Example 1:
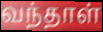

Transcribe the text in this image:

வந்தாள்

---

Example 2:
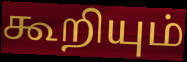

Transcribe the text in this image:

கூறியும்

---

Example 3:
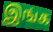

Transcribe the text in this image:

இங்க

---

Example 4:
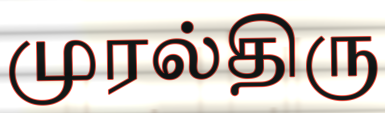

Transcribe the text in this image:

முரல்திரு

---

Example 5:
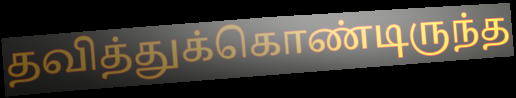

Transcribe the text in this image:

தவித்துக்கொண்டிருந்த